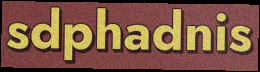
sdphadnis